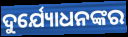
ଦୁର୍ଯ୍ୟୋଧନଙ୍କର